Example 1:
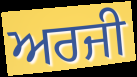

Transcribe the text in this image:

ਅਰਜੀ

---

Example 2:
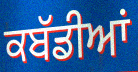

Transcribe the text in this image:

ਕਬੱਡੀਆਂ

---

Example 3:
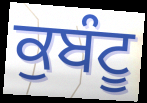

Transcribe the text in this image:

ਕੁਬੰਟੂ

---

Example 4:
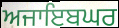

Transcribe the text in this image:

ਅਜਾਇਬਘਰ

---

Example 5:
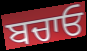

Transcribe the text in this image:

ਬਚਾਓ